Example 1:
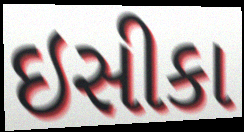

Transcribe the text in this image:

ઇસીકા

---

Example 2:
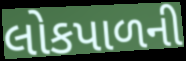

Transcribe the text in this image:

લોકપાળની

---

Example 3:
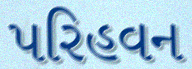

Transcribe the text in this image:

પરિહવન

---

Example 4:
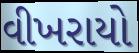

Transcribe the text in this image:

વીખરાયો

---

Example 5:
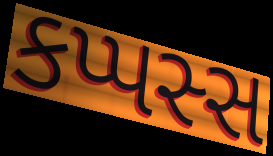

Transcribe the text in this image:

કપ્પસ્સ